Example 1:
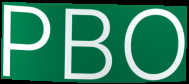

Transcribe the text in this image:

PBO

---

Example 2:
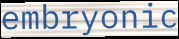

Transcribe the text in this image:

embryonic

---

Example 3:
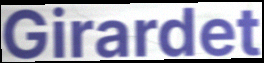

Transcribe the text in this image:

Girardet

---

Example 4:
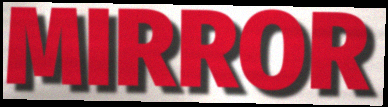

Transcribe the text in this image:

MIRROR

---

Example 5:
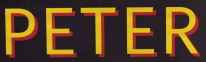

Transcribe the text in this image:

PETER